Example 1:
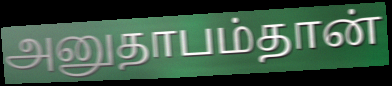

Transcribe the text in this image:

அனுதாபம்தான்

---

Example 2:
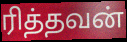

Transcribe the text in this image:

ரித்தவன்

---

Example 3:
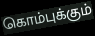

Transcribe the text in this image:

கொம்புக்கும்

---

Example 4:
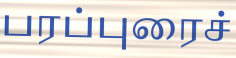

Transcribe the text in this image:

பரப்புரைச்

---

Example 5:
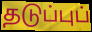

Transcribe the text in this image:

தடுப்புப்